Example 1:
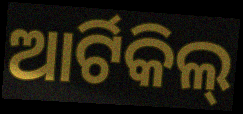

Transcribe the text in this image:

ଆର୍ଟିକିଲ୍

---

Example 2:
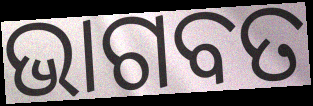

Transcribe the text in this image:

ଭାଗବତ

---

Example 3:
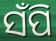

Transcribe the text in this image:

ସଁପି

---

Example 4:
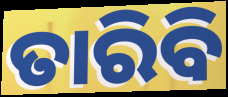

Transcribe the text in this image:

ତାରିବି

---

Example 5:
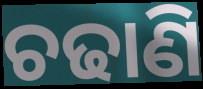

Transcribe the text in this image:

ଚଢାଣି